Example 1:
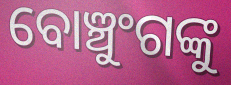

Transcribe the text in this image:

ବୋଞ୍ଚୁଂଗଙ୍କୁ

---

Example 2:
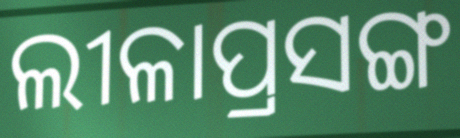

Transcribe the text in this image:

ଲୀଳାପ୍ରସଙ୍ଗ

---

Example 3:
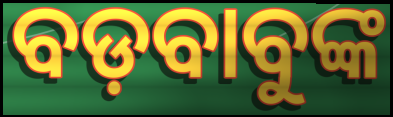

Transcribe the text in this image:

ବଡ଼ବାବୁଙ୍କ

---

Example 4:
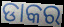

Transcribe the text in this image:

ଡାକର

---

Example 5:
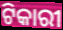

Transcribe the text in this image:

ଟିକାରୀ